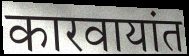
कारवायांत